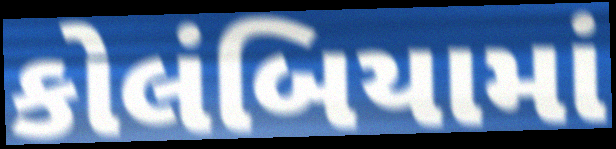
કોલંબિયામાં